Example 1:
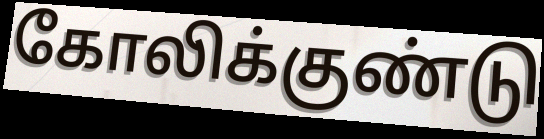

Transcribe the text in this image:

கோலிக்குண்டு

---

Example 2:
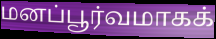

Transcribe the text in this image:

மனப்பூர்வமாகக்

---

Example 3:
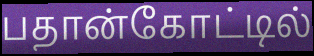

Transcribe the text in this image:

பதான்கோட்டில்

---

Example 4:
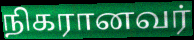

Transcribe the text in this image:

நிகரானவர்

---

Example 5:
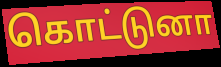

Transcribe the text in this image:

கொட்டுனா